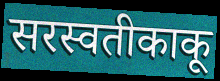
सरस्वतीकाकू